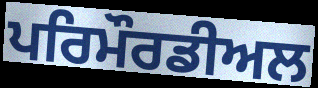
ਪਰਿਮੌਰਡੀਅਲ